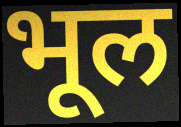
भूल